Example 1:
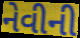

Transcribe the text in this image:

નેવીની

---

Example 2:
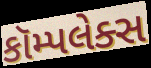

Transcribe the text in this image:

કૉમ્પલેક્સ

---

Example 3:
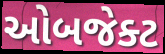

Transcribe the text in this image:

ઓબજેક્ટ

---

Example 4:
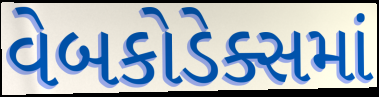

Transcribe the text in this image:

વેબકોડેક્સમાં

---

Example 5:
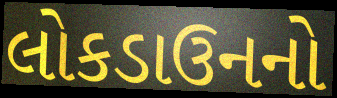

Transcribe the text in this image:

લોકડાઉનનો